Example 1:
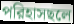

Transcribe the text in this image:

পরিহাসছলে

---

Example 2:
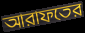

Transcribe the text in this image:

আরাফতের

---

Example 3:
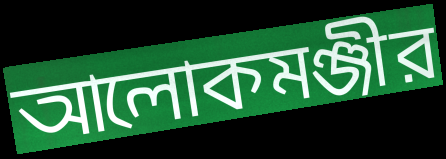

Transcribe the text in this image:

আলোকমঞ্জীর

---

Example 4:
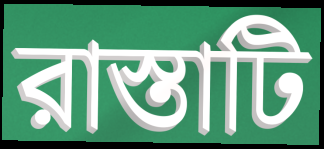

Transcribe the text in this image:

রাস্তাটি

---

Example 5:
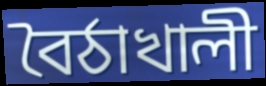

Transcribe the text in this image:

বৈঠাখালী